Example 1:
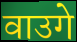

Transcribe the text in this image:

वाउगे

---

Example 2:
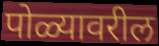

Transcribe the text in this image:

पोळ्यावरील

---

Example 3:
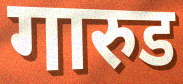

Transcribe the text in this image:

गारुड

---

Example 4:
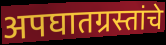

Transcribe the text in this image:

अपघातग्रस्तांचे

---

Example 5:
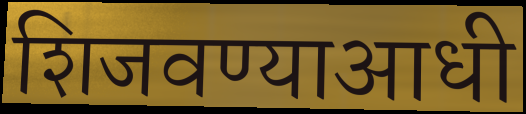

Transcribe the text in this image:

शिजवण्याआधी